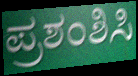
ಪ್ರಶಂಶಿಸಿ